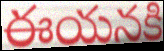
ఈయనకి